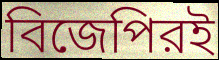
বিজেপিরই